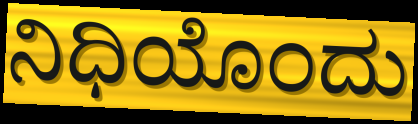
ನಿಧಿಯೊಂದು